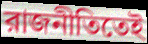
রাজনীতিতেই